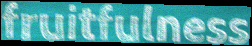
fruitfulness